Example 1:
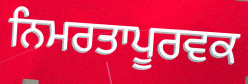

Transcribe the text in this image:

ਨਿਮਰਤਾਪੂਰਵਕ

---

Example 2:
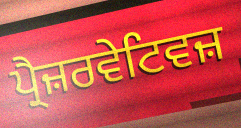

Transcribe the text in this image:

ਪ੍ਰੈਜ਼ਰਵੇਟਿਵਜ਼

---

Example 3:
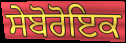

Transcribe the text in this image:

ਸੇਬੋਰੋਇਕ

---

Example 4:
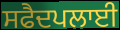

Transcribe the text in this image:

ਸਫੈਦਪਲਾਈ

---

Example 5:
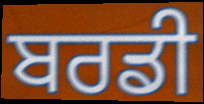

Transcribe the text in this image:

ਬਰਡੀ